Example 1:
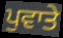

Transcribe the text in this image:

ਪੁਵਾਤੇ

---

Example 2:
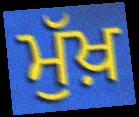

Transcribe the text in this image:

ਮੁੱਖ਼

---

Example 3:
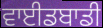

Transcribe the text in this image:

ਵਾਈਡਬਾਡੀ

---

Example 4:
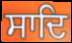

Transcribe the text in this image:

ਸਾਦਿ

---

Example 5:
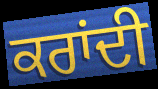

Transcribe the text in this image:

ਕਰਾਂਦੀ